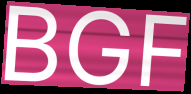
BGF